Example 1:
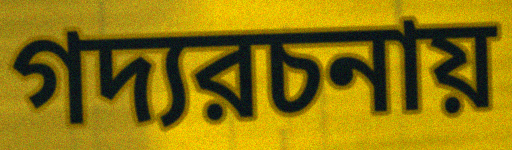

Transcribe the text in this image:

গদ্যরচনায়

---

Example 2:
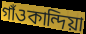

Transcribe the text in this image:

গাঁওকান্দিয়া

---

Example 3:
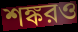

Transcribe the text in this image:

শঙ্করও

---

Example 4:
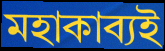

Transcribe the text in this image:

মহাকাব্যই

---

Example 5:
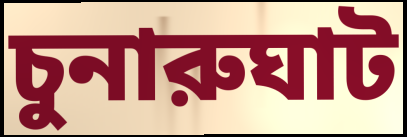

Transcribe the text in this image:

চুনারুঘাট